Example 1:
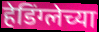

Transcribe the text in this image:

हेडिंग्लेच्या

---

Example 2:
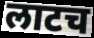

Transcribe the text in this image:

लाटच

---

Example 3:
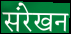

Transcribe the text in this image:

संरेखन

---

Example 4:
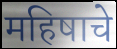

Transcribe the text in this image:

महिषाचे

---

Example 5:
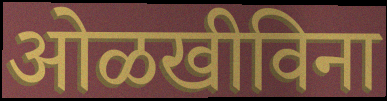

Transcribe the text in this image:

ओळखीविना